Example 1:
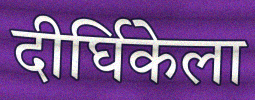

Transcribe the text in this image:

दीर्घिकेला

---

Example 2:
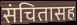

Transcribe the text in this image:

संचितासह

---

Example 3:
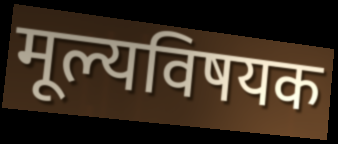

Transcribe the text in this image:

मूल्यविषयक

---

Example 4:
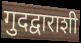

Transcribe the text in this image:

गुदद्वाराशी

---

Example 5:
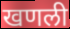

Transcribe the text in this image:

खणली